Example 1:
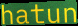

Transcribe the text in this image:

hatun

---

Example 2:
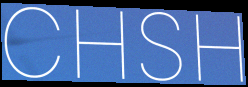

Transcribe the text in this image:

CHSH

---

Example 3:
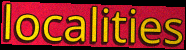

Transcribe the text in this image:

localities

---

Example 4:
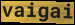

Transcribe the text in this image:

vaigai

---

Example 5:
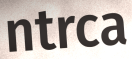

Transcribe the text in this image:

ntrca